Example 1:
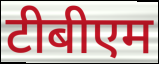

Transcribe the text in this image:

टीबीएम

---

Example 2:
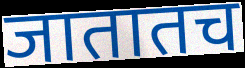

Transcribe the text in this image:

जातातच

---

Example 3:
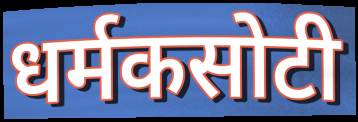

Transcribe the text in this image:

धर्मकसोटी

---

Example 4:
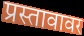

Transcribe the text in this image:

प्रस्तावावर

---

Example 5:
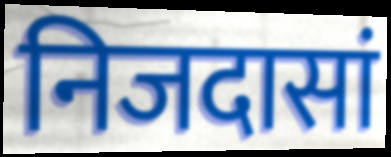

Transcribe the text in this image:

निजदासां